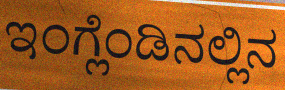
ಇಂಗ್ಲೆಂಡಿನಲ್ಲಿನ